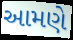
આમણે